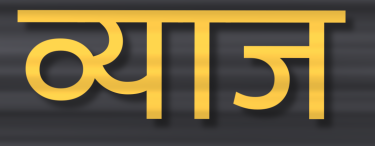
व्याज